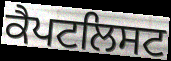
ਕੈਪਟਲਿਸਟ